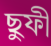
ছুফী